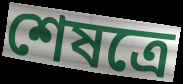
শেষত্রে